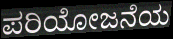
ಪರಿಯೋಜನೆಯ